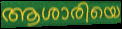
ആശാരിയെ